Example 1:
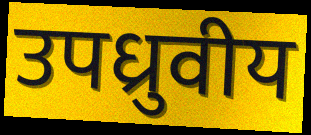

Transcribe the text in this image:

उपध्रुवीय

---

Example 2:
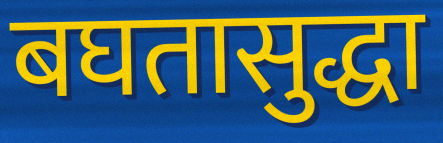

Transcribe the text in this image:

बघतासुद्धा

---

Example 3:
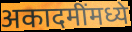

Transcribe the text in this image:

अकादमींमध्ये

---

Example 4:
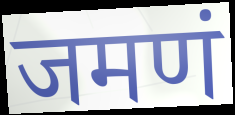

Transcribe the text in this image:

जमणं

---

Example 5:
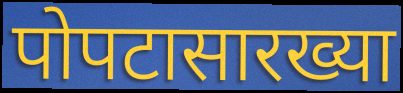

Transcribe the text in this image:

पोपटासारख्या